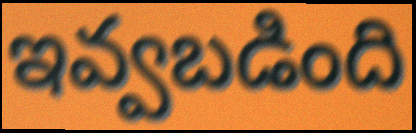
ఇవ్వబడింది